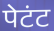
पेटंट